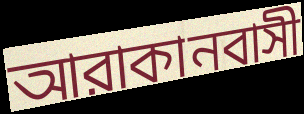
আরাকানবাসী